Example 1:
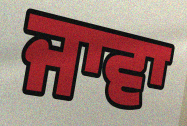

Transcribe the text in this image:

ਜਾਵਾ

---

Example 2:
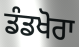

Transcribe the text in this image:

ਡੰਡਖੋਰਾ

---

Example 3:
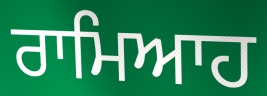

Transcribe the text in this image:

ਰਾਮਿਆਹ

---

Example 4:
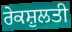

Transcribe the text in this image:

ਰੇਕਸ਼ੁਲਤੀ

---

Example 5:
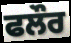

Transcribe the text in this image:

ਫਲੌਰ